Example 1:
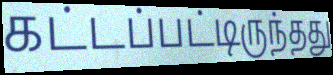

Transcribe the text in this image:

கட்டப்பட்டிருந்தது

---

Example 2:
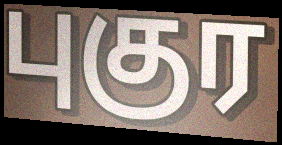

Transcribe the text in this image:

புகுர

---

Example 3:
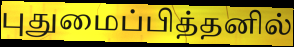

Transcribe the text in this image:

புதுமைப்பித்தனில்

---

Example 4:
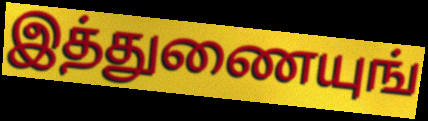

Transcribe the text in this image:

இத்துணையுங்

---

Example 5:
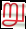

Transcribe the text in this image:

று